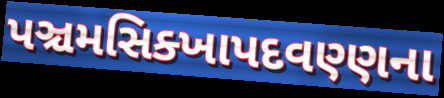
પઞ્ચમસિક્ખાપદવણ્ણના